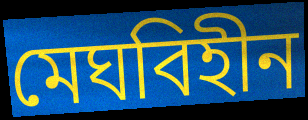
মেঘবিহীন